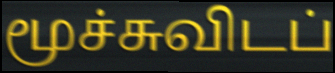
மூச்சுவிடப்